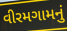
વીરમગામનું